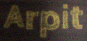
Arpit